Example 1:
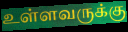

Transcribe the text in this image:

உள்ளவருக்கு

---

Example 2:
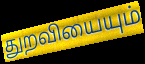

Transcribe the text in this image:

துறவியையும்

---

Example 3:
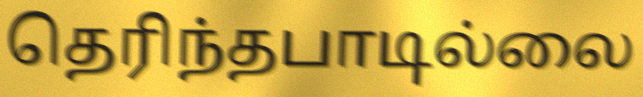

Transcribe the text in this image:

தெரிந்தபாடில்லை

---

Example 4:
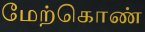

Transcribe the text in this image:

மேற்கொண்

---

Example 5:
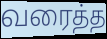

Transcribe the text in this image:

வரைத்த